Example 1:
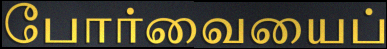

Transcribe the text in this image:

போர்வையைப்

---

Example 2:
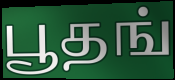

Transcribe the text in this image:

பூதங்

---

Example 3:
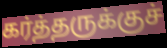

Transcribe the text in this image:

கர்த்தருக்குச்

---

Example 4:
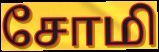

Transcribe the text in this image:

சோமி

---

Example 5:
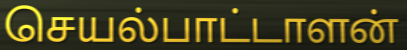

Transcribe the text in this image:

செயல்பாட்டாளன்